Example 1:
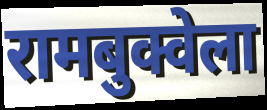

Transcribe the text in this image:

रामबुक्वेला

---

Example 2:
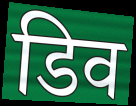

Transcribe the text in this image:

डिव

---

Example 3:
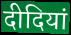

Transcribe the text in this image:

दीदियां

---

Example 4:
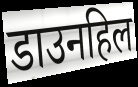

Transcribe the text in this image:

डाउनहिल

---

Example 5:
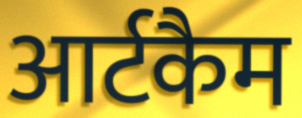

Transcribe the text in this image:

आर्टकैम